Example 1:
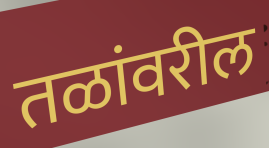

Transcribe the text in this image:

तळांवरील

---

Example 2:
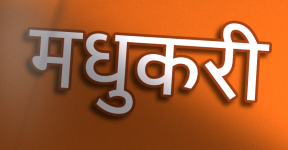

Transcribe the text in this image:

मधुकरी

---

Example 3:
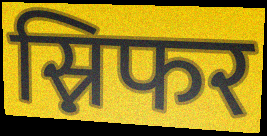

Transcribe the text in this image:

स्निफर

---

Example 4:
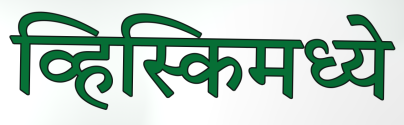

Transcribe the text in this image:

व्हिस्किमध्ये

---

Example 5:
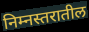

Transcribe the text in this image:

निम्नस्तरातील